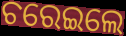
ଚରେଇଲେ